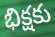
భిక్షకు